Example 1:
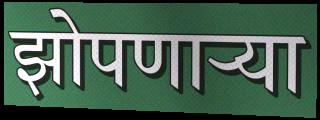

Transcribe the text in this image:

झोपणार्‍या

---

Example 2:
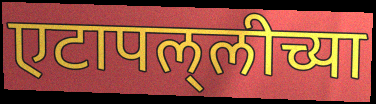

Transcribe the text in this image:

एटापल्लीच्या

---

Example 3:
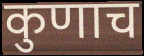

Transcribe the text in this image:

कुणाच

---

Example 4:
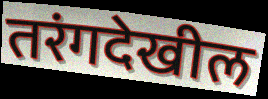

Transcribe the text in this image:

तरंगदेखील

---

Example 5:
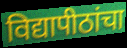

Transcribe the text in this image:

विद्यापीठांचा